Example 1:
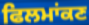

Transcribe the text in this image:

ਫਿਲਮਾਂਕਣ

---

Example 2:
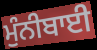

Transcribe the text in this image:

ਮੁੰਨੀਬਾਈ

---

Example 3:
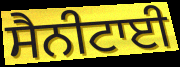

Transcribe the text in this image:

ਸੈਨੀਟਾਈ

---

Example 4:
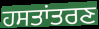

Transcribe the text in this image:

ਹਸਤਾਂਤਰਣ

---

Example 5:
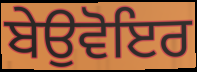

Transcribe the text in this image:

ਬੇਉਵੋਇਰ